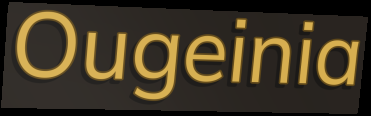
Ougeinia